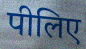
पीलिए